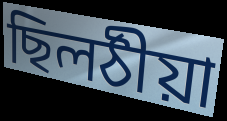
ছিলঠীয়া